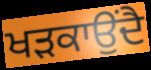
ਖੜਕਾਉਂਦੈ